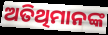
ଅତିଥିମାନଙ୍କ